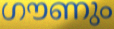
ഗൗണും